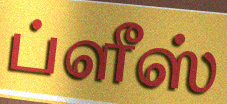
ப்ளீஸ்